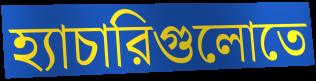
হ্যাচারিগুলোতে